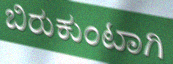
ಬಿರುಕುಂಟಾಗಿ